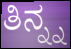
ತಿನ್ನ್ನ